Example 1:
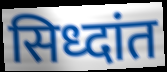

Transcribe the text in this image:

सिध्दांत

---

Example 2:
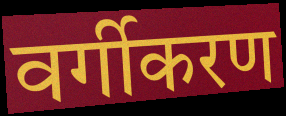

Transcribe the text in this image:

वर्गीकरण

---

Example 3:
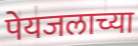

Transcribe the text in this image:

पेयजलाच्या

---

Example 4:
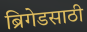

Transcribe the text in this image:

ब्रिगेडसाठी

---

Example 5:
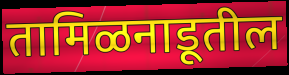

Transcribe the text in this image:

तामिळनाडूतील